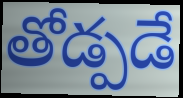
తోడ్పడే